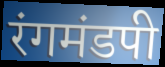
रंगमंडपी